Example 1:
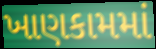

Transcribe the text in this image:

ખાણકામમાં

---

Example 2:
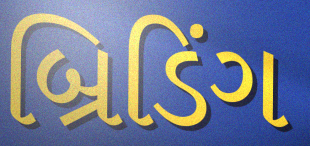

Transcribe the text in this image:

બ્રિડિંગ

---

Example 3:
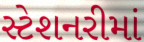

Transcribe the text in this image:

સ્ટેશનરીમાં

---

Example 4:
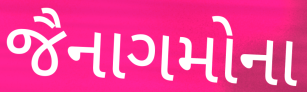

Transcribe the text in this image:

જૈનાગમોના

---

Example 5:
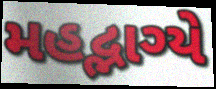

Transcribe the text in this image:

મહદ્ભાગ્યે